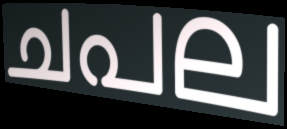
ചപല